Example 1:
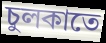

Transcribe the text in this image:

চুলকাতে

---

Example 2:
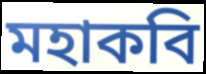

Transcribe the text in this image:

মহাকবি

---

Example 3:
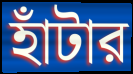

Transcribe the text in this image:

হাঁটার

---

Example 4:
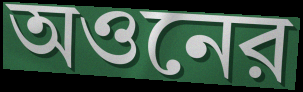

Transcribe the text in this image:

অওনের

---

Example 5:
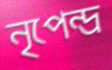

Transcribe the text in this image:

নৃপেন্দ্র